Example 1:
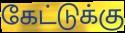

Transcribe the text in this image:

கேட்டுக்கு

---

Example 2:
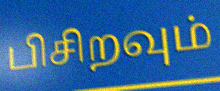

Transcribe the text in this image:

பிசிறவும்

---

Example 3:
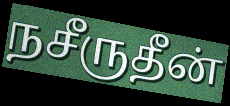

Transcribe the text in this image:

நசீருதீன்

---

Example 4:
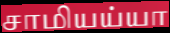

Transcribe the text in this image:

சாமியய்யா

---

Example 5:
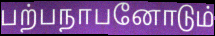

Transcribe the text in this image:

பற்பநாபனோடும்